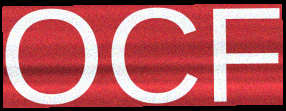
OCF